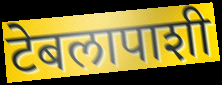
टेबलापाशी